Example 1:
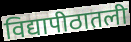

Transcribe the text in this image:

विद्यापीठातली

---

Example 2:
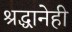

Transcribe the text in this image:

श्रद्धानेही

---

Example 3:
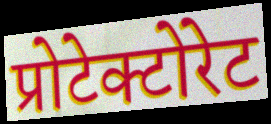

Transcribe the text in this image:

प्रोटेक्टोरेट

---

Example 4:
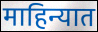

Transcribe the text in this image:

माहिन्यात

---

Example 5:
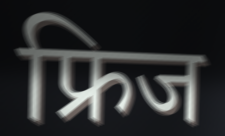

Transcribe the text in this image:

फ्रिज